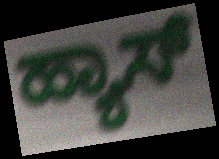
ಹ್ಯಾಸ್